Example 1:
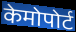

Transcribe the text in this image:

केमोपोर्ट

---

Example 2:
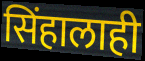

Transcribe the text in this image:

सिंहालाही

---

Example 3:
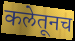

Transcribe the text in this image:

कलेतूनच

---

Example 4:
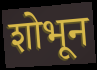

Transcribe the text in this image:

शोभून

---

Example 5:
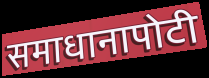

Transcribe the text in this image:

समाधानापोटी